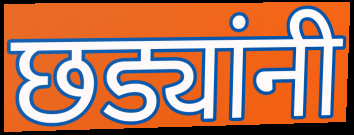
छड्यांनी